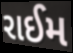
રાઈમ